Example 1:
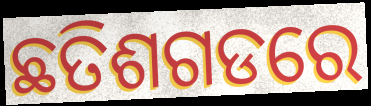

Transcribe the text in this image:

ଛତିଶଗଡରେ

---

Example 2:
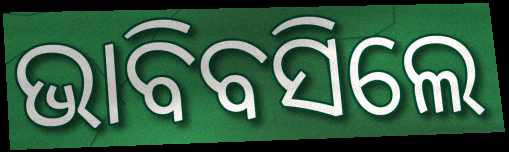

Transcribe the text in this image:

ଭାବିବସିଲେ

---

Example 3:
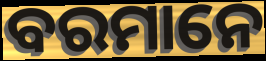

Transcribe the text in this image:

ବରମାନେ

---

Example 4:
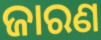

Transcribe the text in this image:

ଜାରଣ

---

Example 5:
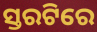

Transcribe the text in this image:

ସ୍ତରଟିରେ